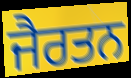
ਜੈਰਤਨ